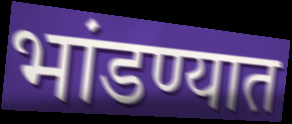
भांडण्यात